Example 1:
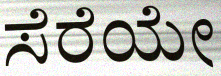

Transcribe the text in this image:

ಸೆರೆಯೇ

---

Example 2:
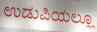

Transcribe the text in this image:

ಉಡುಪಿಯಲ್ಲೂ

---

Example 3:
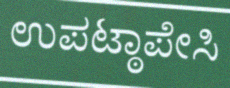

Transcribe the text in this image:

ಉಪಟ್ಠಾಪೇಸಿ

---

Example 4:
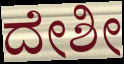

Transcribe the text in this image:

ದೇಶೀ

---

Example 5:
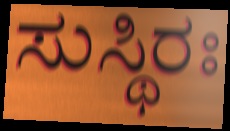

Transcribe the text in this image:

ಸುಸ್ಥಿರಃ